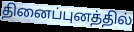
தினைப்புனத்தில்